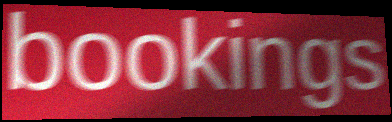
bookings